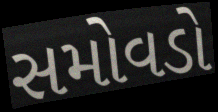
સમોવડો